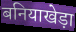
बनियाखेड़ा